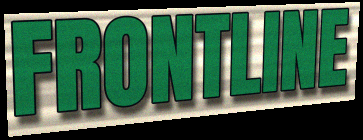
FRONTLINE